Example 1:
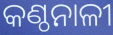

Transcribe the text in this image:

କଣ୍ଠନାଳୀ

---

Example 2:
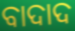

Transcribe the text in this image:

ବାଦାଦ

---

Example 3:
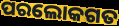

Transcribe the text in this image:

ପରଲୋକଗତ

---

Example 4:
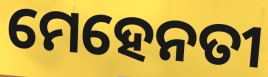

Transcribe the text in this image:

ମେହେନତୀ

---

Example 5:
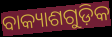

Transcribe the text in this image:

ବାକ୍ୟାଶଗୁଡ଼ିକ